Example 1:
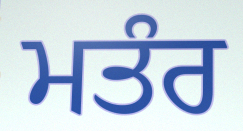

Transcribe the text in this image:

ਮਤੰਰ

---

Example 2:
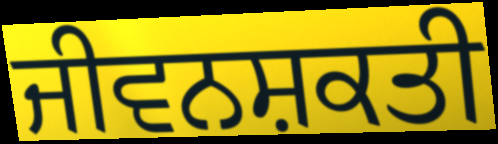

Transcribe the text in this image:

ਜੀਵਨਸ਼ਕਤੀ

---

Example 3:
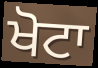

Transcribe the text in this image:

ਖੋਟਾ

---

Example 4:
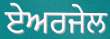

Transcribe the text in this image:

ਏਅਰਜੇਲ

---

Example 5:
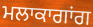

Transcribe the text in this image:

ਮਲਾਕਾਗਾਂਗ